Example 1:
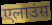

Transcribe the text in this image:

एलाउंस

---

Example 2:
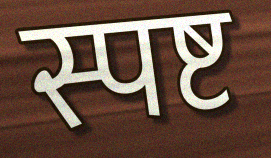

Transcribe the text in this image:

स्पष्ट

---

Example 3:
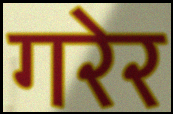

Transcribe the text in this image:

गरेर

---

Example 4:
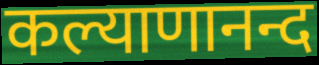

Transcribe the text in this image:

कल्याणानन्द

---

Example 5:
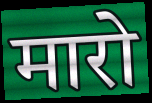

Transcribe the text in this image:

मारो